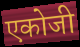
एकोजी